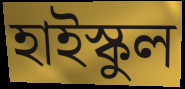
হাইস্কুল